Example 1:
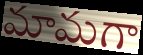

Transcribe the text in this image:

మామగా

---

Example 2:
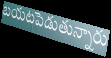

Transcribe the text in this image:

బయటపెడుతున్నారు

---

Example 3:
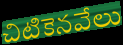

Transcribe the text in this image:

చిటికెనవేలు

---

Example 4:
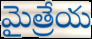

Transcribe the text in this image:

మైత్రేయ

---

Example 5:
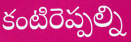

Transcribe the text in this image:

కంటిరెప్పల్ని